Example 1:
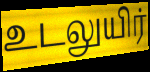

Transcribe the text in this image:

உடலுயிர்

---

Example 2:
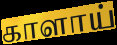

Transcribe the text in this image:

காளாய்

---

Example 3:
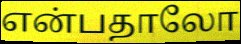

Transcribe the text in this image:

என்பதாலோ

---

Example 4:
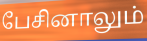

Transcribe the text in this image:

பேசினாலும்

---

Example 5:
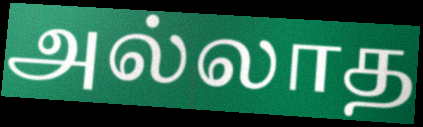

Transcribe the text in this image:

அல்லாத